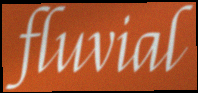
fluvial